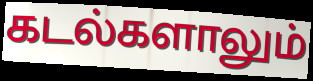
கடல்களாலும்